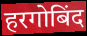
हरगोबिंद